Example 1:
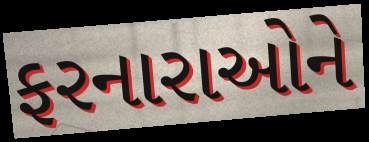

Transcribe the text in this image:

ફરનારાઓને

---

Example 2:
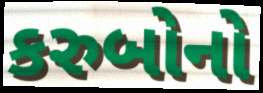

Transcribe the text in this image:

કરુબોનો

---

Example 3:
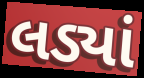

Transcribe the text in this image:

લડ્યાં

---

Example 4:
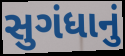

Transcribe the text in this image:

સુગંધાનું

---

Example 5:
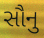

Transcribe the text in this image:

સૌનુ